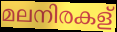
മലനിരകള്